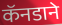
कॅनडाने